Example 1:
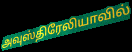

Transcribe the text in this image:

அவுஸ்திரேலியாவில்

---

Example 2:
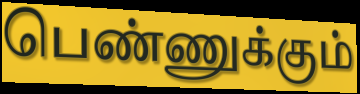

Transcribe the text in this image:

பெண்ணுக்கும்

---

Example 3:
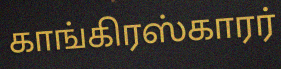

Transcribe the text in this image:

காங்கிரஸ்காரர்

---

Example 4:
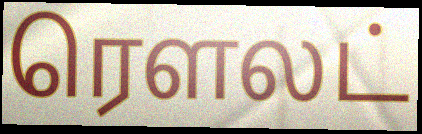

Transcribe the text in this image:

ரௌலட்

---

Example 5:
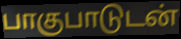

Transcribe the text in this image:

பாகுபாடுடன்